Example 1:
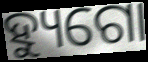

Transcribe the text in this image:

ହ୍ୟୁଗୋ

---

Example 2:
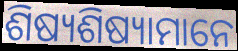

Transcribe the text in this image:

ଶିଷ୍ୟଶିଷ୍ୟାମାନେ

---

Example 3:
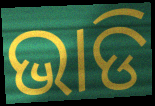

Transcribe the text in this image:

ଭାଡି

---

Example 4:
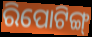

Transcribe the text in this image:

ରିପୋଟିଙ୍ଗ୍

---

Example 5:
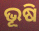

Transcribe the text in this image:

ଭୂଷି